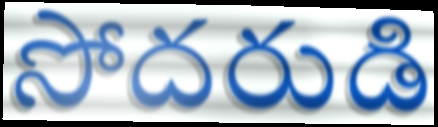
సోదరుడి